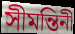
সীমন্তিনী